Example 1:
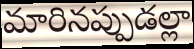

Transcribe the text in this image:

మారినప్పుడల్లా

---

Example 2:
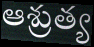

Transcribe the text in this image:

ఆశ్రుత్య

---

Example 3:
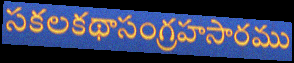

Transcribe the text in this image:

సకలకథాసంగ్రహసారము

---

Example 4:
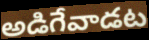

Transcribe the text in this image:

అడిగేవాడట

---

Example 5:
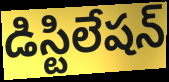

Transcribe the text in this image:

డిస్టిలేషన్